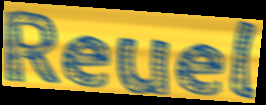
Reuel